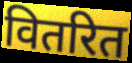
वितरित